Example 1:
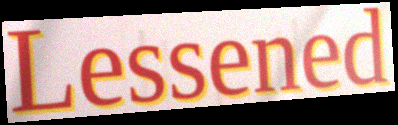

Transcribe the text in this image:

Lessened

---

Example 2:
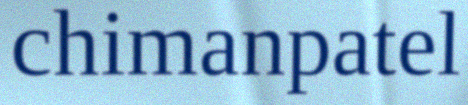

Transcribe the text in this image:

chimanpatel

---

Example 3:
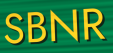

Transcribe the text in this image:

SBNR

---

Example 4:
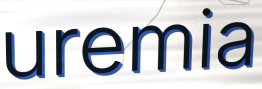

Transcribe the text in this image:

uremia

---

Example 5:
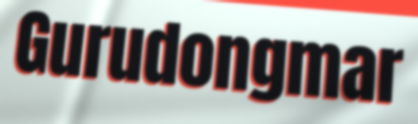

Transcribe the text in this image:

Gurudongmar